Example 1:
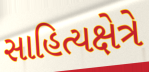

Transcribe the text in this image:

સાહિત્યક્ષેત્રે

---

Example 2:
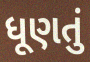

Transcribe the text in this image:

ધૂણતું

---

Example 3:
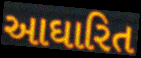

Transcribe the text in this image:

આઘારિત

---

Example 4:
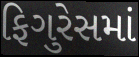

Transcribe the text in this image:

ફિગુરેસમાં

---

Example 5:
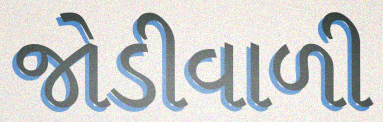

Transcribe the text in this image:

જોડીવાળી